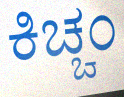
ಕಿಚ್ಚಂ